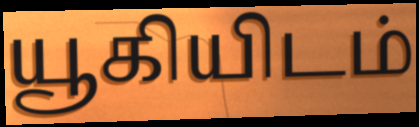
யூகியிடம்